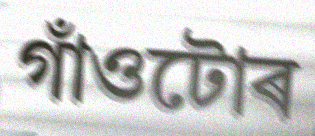
গাঁওটোৰ